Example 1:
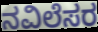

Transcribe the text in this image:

ನವಿಲೆಸರ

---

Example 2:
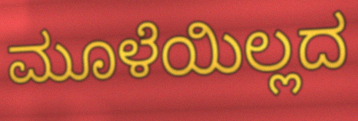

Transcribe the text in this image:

ಮೂಳೆಯಿಲ್ಲದ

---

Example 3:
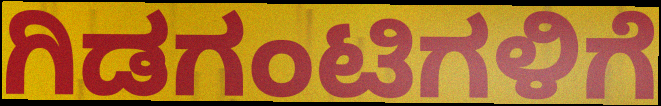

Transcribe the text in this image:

ಗಿಡಗಂಟಿಗಳಿಗೆ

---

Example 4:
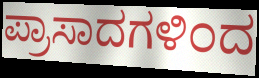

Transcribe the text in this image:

ಪ್ರಾಸಾದಗಳಿಂದ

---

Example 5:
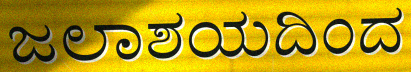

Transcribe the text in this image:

ಜಲಾಶಯದಿಂದ